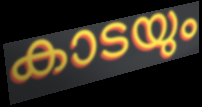
കാടയും